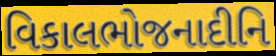
વિકાલભોજનાદીનિ